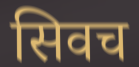
सिवच